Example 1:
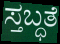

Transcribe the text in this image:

ಸ್ತಬ್ಧತೆ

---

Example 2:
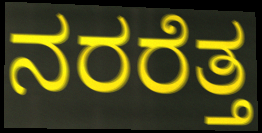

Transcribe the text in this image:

ನರರೆತ್ತ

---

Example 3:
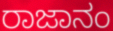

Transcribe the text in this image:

ರಾಜಾನಂ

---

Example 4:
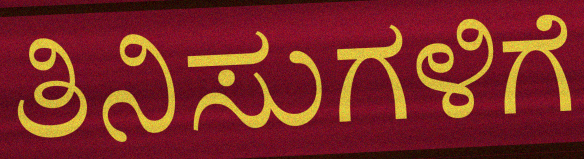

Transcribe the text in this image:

ತಿನಿಸುಗಳಿಗೆ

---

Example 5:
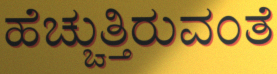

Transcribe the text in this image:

ಹೆಚ್ಚುತ್ತಿರುವಂತೆ